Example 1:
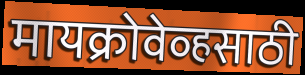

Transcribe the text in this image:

मायक्रोवेव्हसाठी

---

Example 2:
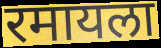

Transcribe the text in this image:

रमायला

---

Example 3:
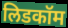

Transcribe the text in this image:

लिडकॉम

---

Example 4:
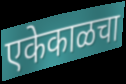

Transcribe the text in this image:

एकेकाळचा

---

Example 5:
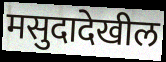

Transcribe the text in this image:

मसुदादेखील